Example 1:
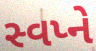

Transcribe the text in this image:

સ્વપ્ને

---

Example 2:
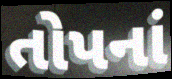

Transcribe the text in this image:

તોપનાં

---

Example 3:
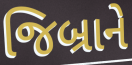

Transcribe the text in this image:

જિબ્રાને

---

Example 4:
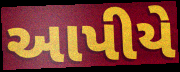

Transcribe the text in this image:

આપીયે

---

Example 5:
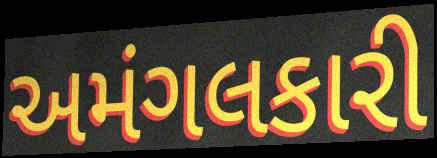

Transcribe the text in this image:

અમંગલકારી